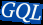
GQL